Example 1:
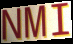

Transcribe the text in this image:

NMI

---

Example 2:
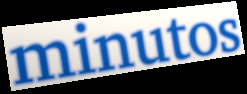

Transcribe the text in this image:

minutos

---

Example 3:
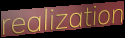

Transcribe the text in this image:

realization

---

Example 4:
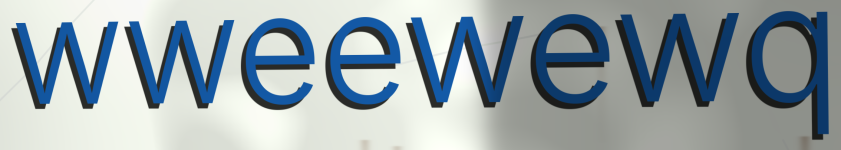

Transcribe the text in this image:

wweewewq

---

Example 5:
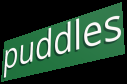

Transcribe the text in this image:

puddles